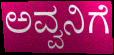
ಅವ್ವನಿಗೆ